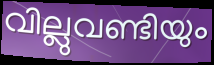
വില്ലുവണ്ടിയും